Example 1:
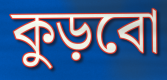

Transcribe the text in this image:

কুড়বো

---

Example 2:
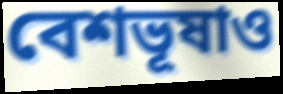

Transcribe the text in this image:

বেশভূষাও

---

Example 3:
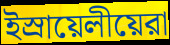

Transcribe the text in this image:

ইস্রায়েলীয়েরা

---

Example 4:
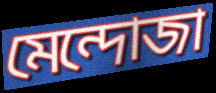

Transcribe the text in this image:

মেন্দোজা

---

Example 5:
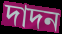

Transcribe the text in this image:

দাদন